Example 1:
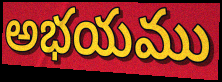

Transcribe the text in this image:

అభయము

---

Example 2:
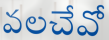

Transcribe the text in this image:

వలచేవో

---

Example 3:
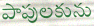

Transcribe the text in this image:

పాపులకును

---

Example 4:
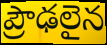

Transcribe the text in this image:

ప్రౌఢలైన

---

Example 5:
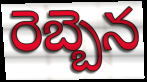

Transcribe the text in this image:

రెబ్బెన